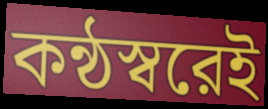
কন্ঠস্বরেই